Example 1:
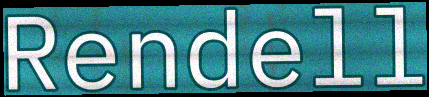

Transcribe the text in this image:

Rendell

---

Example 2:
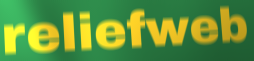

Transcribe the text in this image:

reliefweb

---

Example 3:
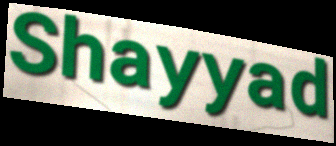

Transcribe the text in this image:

Shayyad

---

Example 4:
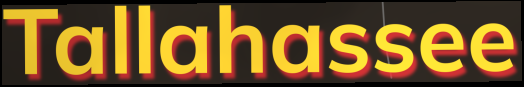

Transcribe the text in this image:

Tallahassee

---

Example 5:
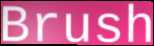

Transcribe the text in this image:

Brush